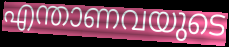
എന്താണവയുടെ